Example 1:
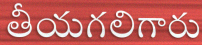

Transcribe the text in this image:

తీయగలిగారు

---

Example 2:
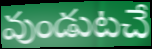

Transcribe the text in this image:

వుండుటచే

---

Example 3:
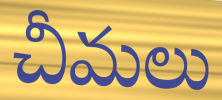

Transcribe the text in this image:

చీమలు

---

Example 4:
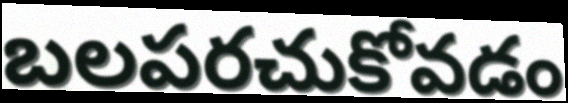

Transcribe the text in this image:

బలపరచుకోవడం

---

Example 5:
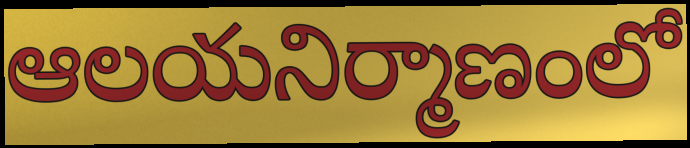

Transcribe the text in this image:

ఆలయనిర్మాణంలో